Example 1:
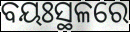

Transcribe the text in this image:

ବୟଃସ୍ଥଳରେ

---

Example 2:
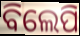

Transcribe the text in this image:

ବିଲେପି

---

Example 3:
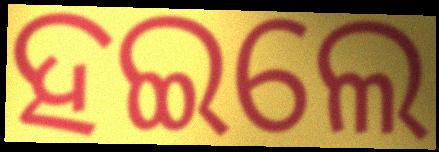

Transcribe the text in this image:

ହଇଲେ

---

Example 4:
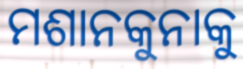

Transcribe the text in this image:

ମଶାନକୁନାକୁ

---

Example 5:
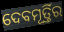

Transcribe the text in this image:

ଦେବମୂର୍ତ୍ତିର